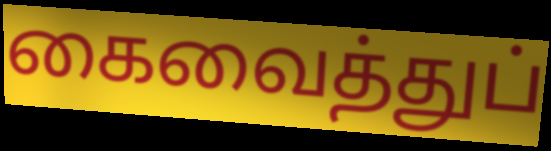
கைவைத்துப்